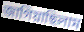
জাগিয়াছিলাম